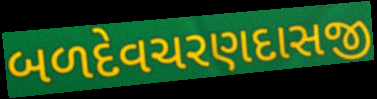
બળદેવચરણદાસજી